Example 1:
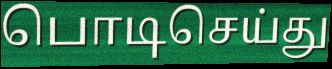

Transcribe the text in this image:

பொடிசெய்து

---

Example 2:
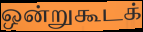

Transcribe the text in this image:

ஒன்றுகூடக்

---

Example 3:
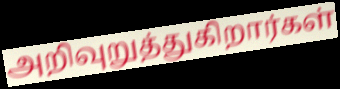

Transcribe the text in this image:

அறிவுறுத்துகிறார்கள்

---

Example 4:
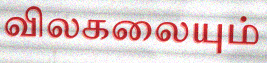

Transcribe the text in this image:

விலகலையும்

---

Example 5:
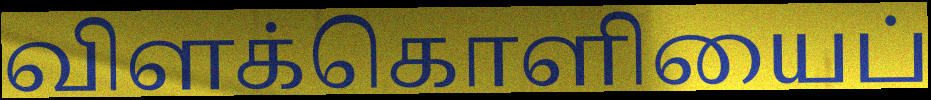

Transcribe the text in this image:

விளக்கொளியைப்